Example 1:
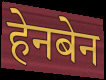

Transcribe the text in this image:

हेनबेन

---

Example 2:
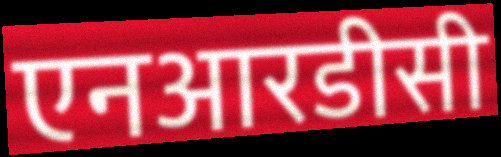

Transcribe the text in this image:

एनआरडीसी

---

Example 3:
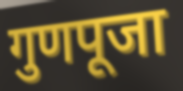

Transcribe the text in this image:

गुणपूजा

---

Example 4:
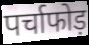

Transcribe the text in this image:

पर्चाफोड़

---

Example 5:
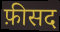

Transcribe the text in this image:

फ़ीसद